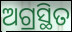
ଅଗ୍ରସ୍ଥିତ